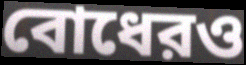
বোধেরও